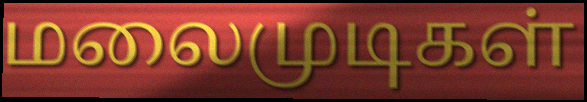
மலைமுடிகள்